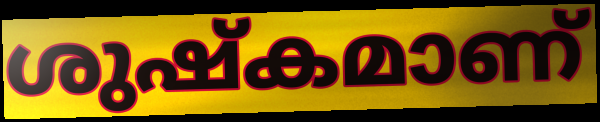
ശുഷ്കമാണ്